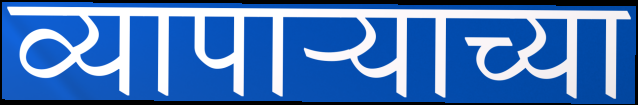
व्यापाऱ्याच्या